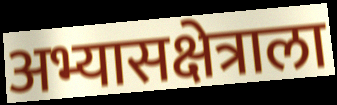
अभ्यासक्षेत्राला